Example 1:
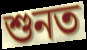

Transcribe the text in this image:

শুনত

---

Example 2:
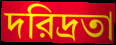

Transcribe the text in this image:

দরিদ্রতা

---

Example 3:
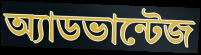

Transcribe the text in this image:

অ্যাডভান্টেজ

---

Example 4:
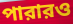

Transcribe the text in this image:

পারারও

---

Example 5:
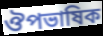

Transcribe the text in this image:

ঔপভাষিক